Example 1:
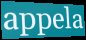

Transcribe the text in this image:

appela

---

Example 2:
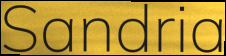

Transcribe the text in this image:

Sandria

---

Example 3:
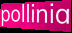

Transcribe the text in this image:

pollinia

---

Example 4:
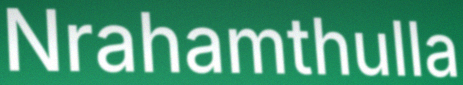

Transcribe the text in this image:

Nrahamthulla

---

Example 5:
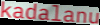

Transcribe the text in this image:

kadalanu